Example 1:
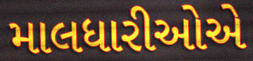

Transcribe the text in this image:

માલધારીઓએ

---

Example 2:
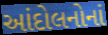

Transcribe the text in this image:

આંદોલનોનાં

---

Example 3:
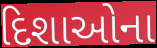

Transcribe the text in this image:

દિશાઓના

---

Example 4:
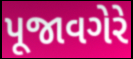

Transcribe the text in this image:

પૂજાવગેરે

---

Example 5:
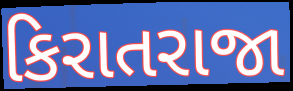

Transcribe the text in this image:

કિરાતરાજા